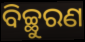
ବିଚ୍ଛୁରଣ